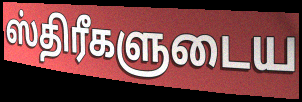
ஸ்திரீகளுடைய